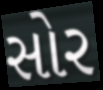
સોર